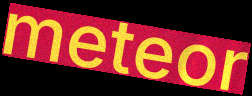
meteor